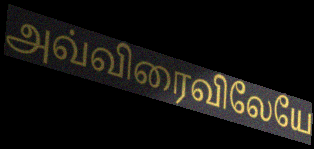
அவ்விரைவிலேயே